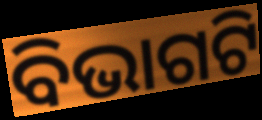
ବିଭାଗଟି